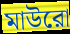
মাউরো